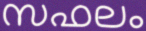
സഫലം